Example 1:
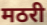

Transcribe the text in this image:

मठरी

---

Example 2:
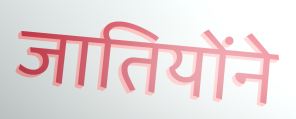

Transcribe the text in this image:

जातियोंने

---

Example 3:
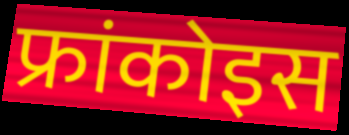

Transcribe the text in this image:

फ्रांकोइस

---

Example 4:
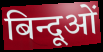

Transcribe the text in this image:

बिन्दूओं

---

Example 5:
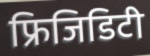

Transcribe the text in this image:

फ्रिजिडिटी